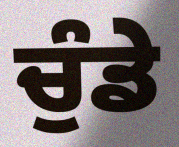
ਚੁੰਡੇ